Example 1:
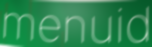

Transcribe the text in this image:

menuid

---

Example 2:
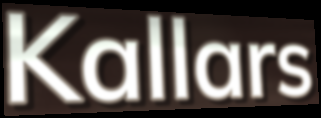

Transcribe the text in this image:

Kallars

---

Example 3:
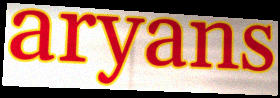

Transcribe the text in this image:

aryans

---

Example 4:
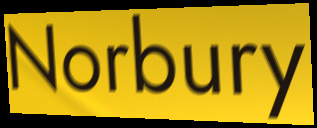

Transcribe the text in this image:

Norbury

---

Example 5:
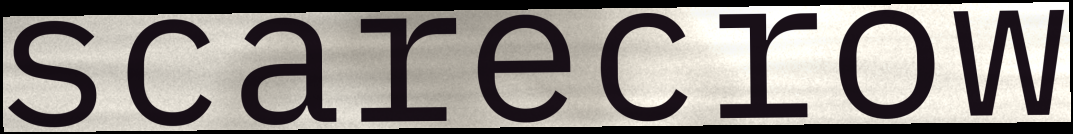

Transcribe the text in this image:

scarecrow